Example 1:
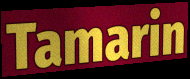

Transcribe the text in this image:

Tamarin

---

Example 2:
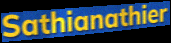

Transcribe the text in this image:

Sathianathier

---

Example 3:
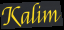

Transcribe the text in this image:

Kalim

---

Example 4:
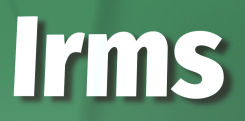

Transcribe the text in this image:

Irms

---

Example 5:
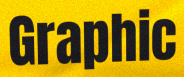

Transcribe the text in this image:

Graphic